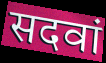
सदवां